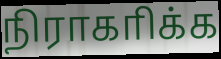
நிராகரிக்க